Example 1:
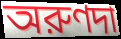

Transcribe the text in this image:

অরুণদা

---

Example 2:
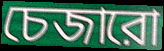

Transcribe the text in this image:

চেজারো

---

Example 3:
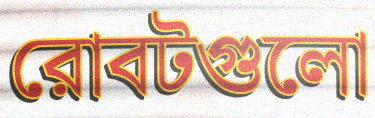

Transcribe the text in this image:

রোবটগুলো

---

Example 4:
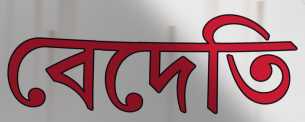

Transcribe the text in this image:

বেদেতি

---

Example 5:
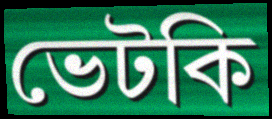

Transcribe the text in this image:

ভেটকি